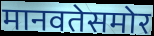
मानवतेसमोर